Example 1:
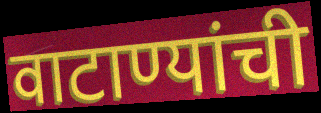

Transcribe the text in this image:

वाटाण्यांची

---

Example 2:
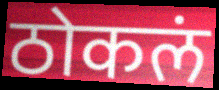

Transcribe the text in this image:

ठोकलं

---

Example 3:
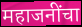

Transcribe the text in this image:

महाजनींचा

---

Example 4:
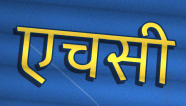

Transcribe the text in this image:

एचसी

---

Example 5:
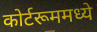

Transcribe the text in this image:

कोर्टरूममध्ये